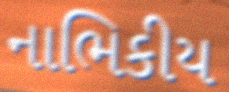
નાભિકીય